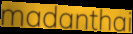
madanthai